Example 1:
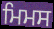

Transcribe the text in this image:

ਮਿਮਸ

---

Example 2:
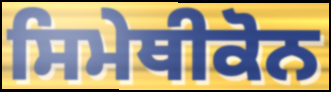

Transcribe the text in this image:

ਸਿਮੇਥੀਕੋਨ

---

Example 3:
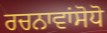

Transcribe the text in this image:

ਰਚਨਾਵਾਂਸੋਧੋ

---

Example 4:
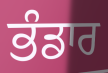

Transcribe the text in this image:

ਭੰਡਾਰ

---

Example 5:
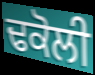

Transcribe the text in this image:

ਢਕੋਲੀ